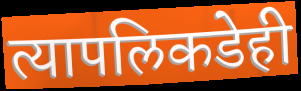
त्यापलिकडेही